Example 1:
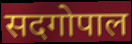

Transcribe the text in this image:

सदगोपाल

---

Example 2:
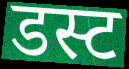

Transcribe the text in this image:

डस्ट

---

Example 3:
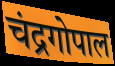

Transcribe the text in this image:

चंद्रगोपाल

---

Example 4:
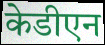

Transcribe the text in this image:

केडीएन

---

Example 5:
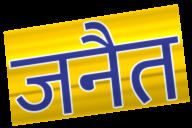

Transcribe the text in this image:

जनैत